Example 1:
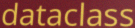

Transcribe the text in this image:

dataclass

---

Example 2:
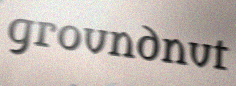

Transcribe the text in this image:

groundnut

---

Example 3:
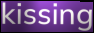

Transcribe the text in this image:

kissing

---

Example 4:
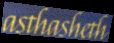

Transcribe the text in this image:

asthasheth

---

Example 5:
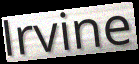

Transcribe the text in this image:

Irvine